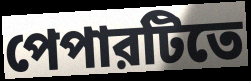
পেপারটিতে